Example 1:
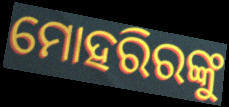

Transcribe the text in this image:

ମୋହରିରଙ୍କୁ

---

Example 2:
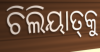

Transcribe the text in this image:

ଚିଲିୟାତ୍‍କୁ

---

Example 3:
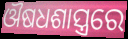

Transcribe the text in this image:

ଔଷଧଶାସ୍ତ୍ରରେ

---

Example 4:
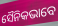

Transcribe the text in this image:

ସୈନିକଭାବେ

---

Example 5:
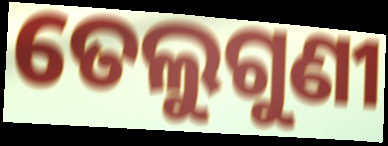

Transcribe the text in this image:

ତେଲୁଗୁଣୀ